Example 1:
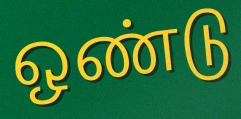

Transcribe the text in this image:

ஒண்டு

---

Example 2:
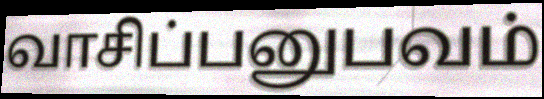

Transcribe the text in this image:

வாசிப்பனுபவம்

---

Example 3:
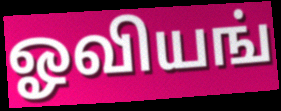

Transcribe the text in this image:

ஓவியங்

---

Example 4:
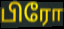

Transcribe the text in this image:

பிரோ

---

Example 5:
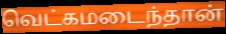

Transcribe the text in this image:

வெட்கமடைந்தான்